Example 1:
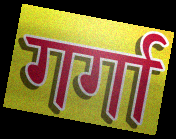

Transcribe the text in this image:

गर्गा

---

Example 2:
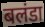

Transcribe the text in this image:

बलंडा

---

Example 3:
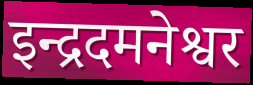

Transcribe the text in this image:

इन्द्रदमनेश्वर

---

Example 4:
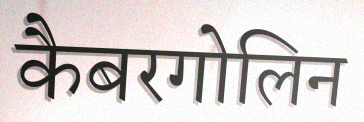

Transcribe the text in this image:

कैबरगोलिन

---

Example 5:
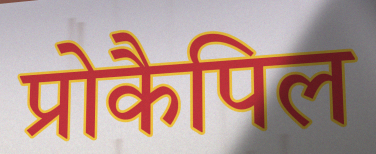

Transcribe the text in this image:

प्रोकैपिल